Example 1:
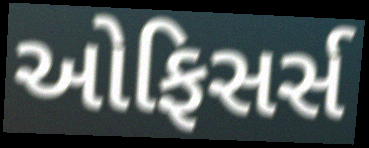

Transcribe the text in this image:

ઓફિસર્સ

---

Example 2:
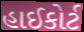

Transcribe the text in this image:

હાઈકોર્ટ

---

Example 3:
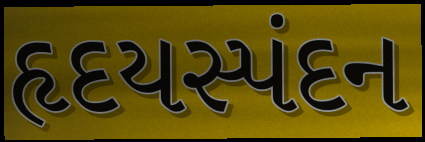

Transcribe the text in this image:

હૃદયસ્પંદન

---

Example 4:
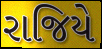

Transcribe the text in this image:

રાજિયે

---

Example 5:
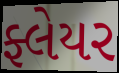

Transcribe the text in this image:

ફ્લેયર